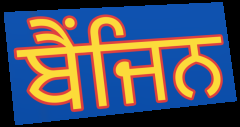
ਬੈਂਜਿਨ